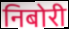
निबोरी